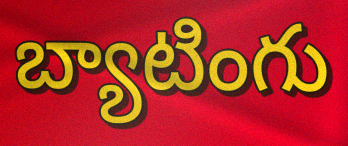
బ్యాటింగు